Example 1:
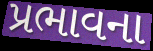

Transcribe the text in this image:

પ્રભાવના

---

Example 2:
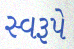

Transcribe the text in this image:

સ્વરૂપે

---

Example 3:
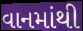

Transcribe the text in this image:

વાનમાંથી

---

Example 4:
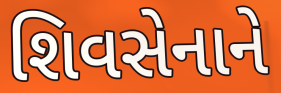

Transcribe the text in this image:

શિવસેનાને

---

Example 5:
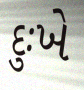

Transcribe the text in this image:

દુઃખે